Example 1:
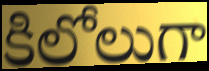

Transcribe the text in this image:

కిలోలుగా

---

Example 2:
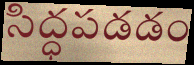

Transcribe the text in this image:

సిద్ధపడడం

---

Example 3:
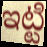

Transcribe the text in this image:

ఇట్టి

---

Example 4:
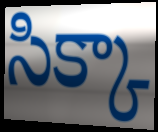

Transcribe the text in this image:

సిక్కా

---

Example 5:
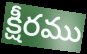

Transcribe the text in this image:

క్షీరము